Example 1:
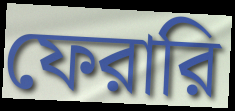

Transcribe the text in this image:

ফেরারি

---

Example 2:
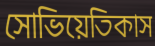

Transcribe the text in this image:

সোভিয়েতিকাস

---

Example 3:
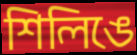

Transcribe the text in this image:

শিলিঙে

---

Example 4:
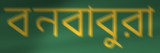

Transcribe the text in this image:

বনবাবুরা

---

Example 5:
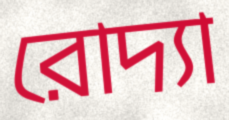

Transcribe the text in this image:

রোদ্যা